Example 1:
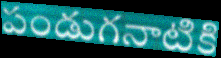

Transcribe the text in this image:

పండుగనాటికి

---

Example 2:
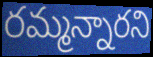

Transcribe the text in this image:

రమ్మన్నారని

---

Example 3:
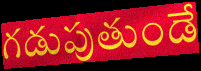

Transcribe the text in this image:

గడుపుతుండే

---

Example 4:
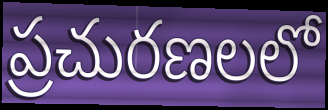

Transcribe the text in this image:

ప్రచురణలలో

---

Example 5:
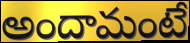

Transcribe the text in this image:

అందామంటే